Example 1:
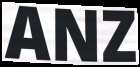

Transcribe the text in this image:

ANZ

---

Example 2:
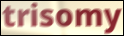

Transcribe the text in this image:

trisomy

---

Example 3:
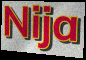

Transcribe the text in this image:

Nija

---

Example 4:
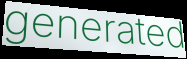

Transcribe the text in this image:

generated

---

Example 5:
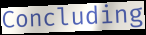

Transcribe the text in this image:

Concluding